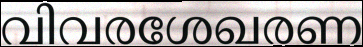
വിവരശേഖരണ